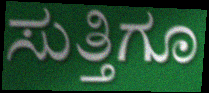
ಸುತ್ತಿಗೂ